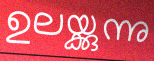
ഉലയ്ക്കുന്നു